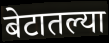
बेटातल्या